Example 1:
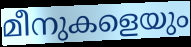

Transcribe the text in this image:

മീനുകളെയും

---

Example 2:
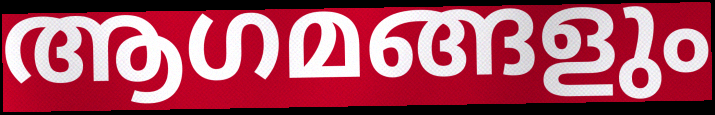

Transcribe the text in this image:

ആഗമങ്ങളും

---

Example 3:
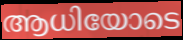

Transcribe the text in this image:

ആധിയോടെ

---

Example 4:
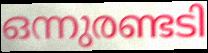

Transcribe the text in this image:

ഒന്നുരണ്ടടി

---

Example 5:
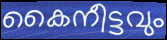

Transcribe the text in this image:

കൈനീട്ടവും